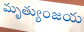
మృత్యుంజయ